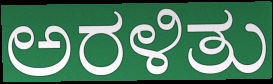
ಅರಳಿತು